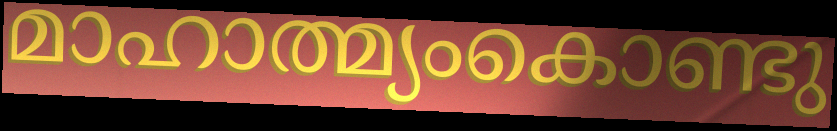
മാഹാത്മ്യംകൊണ്ടു